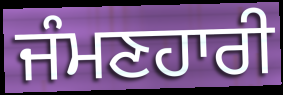
ਜੰਮਣਹਾਰੀ